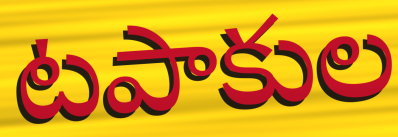
టపాకుల